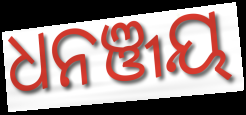
ଧନଞ୍ଜୟ